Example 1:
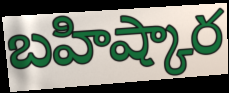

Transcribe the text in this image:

బహిష్కార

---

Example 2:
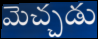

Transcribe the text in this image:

మెచ్చడు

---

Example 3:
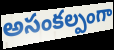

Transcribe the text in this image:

అసంకల్పంగా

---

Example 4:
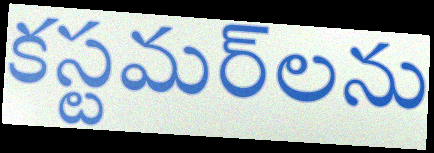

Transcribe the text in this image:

కస్టమర్‌లను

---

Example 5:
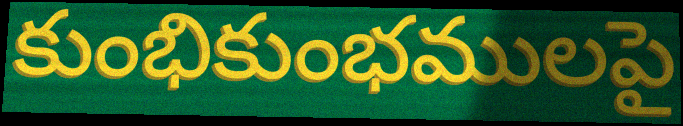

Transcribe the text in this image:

కుంభికుంభములపై